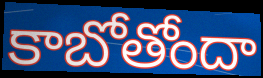
కాబోతోందా